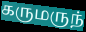
கருமருந்